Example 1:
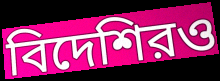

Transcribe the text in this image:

বিদেশিরও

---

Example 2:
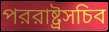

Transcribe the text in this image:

পররাষ্ট্রসচিব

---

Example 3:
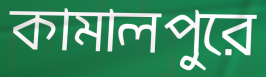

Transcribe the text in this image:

কামালপুরে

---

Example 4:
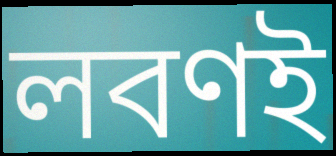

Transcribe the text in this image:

লবণই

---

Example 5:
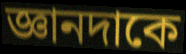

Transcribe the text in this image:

জ্ঞানদাকে